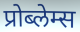
प्रोब्लेम्स